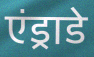
एंड्राडे